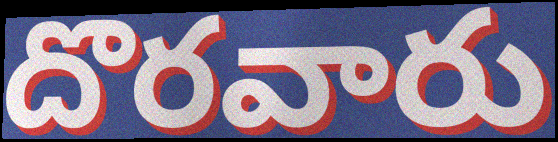
దొరవారు